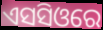
ଏସସିଓରେ